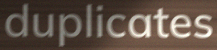
duplicates